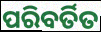
ପରିବର୍ତିତ